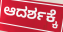
ಆದರ್ಶಕ್ಕೆ